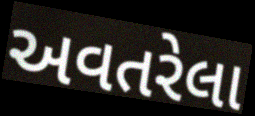
અવતરેલા